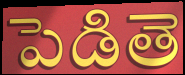
పెడితె